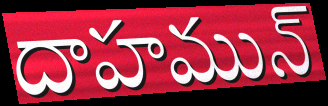
దాహమున్